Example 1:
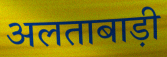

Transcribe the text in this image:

अलताबाड़ी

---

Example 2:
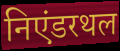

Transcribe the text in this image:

निएंडरथल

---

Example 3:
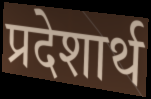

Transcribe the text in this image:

प्रदेशार्थ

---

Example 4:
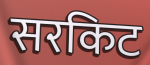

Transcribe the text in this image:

सरकिट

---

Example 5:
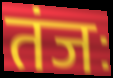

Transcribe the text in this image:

तंजः